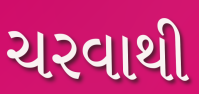
ચરવાથી